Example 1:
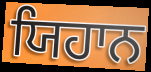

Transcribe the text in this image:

ਯਿਹਾਨ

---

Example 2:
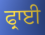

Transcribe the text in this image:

ਫ੍ਰਾਈ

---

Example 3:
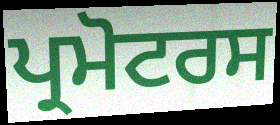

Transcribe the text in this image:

ਪ੍ਰਮੋਟਰਸ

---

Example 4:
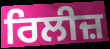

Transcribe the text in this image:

ਰਿਲੀਜ਼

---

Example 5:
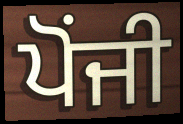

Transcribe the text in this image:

ਪੋਂਜੀ